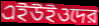
এইউইওদের